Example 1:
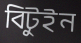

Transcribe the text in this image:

বিটুইন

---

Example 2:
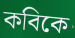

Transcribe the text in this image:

কবিকে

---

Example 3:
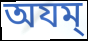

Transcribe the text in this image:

অযম্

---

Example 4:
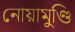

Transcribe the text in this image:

নোয়ামুণ্ডি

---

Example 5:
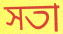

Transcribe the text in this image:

সতা